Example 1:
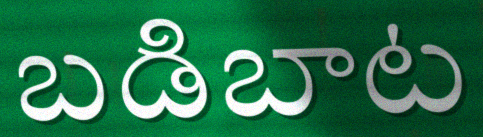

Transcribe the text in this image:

బడిబాట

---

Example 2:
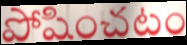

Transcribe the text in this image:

పోషించటం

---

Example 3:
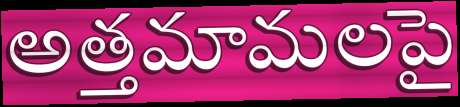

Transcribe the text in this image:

అత్తమామలపై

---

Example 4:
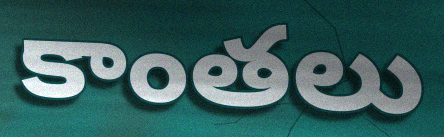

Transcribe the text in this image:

కాంతలు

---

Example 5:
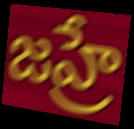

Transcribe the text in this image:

జహ్రే